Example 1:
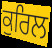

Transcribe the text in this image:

ਕੁਰਿਲ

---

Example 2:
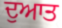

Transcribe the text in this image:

ਦੁਆਤ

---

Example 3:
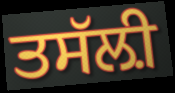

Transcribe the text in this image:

ਤਸੱਲ਼ੀ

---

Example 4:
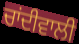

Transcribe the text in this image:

ਚਾਂਦੀਵਾਲੀ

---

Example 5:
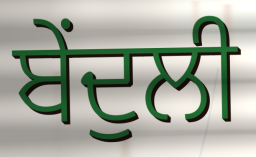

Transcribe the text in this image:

ਬੇਂਦੁਲੀ